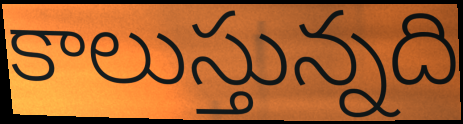
కాలుస్తున్నది